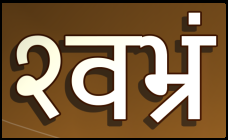
श्वभ्रं